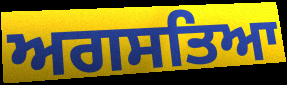
ਅਗਸਤਿਆ